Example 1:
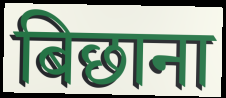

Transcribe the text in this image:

बिछाना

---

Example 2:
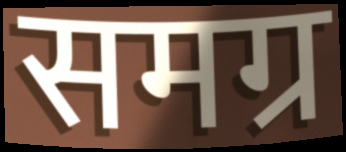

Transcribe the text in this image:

समग्र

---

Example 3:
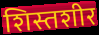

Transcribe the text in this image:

शिस्तशीर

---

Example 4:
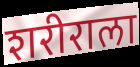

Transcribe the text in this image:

शरीराला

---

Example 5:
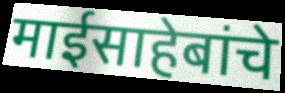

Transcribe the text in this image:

माईसाहेबांचे